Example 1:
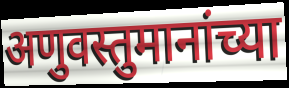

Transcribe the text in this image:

अणुवस्तुमानांच्या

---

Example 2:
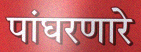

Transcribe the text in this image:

पांघरणारे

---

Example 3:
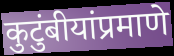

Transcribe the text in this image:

कुटुंबीयांप्रमाणे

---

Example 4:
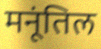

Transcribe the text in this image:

मनूंतिल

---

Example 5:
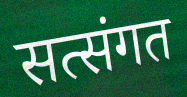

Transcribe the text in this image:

सत्संगत